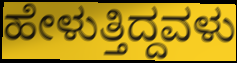
ಹೇಳುತ್ತಿದ್ದವಳು